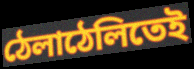
ঠেলাঠেলিতেই